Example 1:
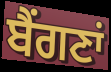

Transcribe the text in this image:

ਬੈਂਗਣਾਂ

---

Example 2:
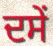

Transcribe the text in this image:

ਦਸੇਂ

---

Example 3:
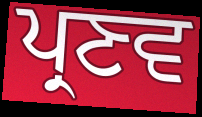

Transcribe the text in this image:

ਪ੍ਰਣਵ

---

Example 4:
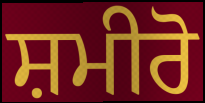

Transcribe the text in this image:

ਸ਼ਮੀਰੋ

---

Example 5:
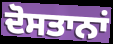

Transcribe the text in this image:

ਦੋਸਤਾਨਾਂ